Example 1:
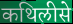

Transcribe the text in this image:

कथिलीसे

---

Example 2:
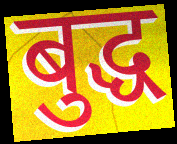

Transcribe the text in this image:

बुद्ध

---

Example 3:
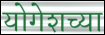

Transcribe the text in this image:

योगेशच्या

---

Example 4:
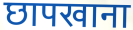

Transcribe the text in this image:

छापखाना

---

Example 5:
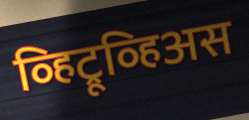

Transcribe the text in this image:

व्हिट्रूव्हिअस